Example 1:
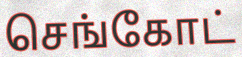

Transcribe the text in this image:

செங்கோட்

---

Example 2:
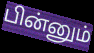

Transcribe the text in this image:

பின்னும்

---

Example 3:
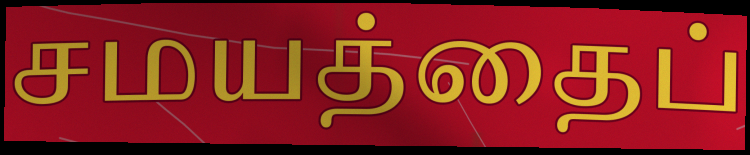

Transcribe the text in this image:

சமயத்தைப்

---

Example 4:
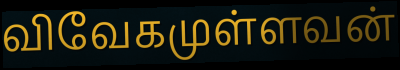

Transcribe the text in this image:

விவேகமுள்ளவன்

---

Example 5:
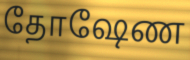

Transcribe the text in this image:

தோஷேண